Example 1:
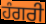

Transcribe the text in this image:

ਹੰਗਰੀ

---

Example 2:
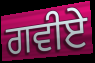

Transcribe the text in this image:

ਗਵੀਏ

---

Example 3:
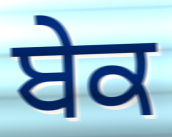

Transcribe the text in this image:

ਬੇਕ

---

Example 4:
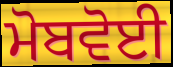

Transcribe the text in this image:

ਮੋਬਵੋਈ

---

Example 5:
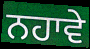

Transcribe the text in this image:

ਨਹਾਵੇ